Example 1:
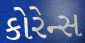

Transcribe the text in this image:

કોરેન્સ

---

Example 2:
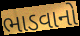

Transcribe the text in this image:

ભાડવાનો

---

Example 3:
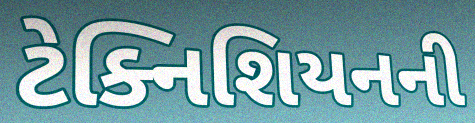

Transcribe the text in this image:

ટેક્નિશિયનની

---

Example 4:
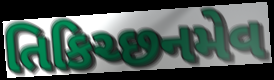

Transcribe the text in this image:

તિકિચ્છનમેવ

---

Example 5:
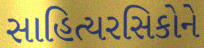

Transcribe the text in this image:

સાહિત્યરસિકોને